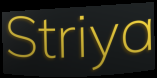
Striya